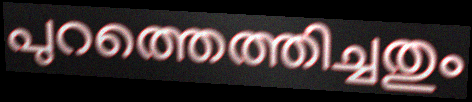
പുറത്തെത്തിച്ചതും